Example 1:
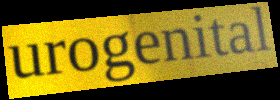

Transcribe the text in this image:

urogenital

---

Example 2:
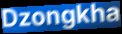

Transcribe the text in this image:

Dzongkha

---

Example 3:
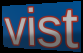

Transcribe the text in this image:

vist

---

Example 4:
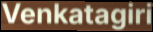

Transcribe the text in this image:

Venkatagiri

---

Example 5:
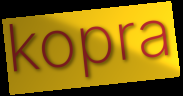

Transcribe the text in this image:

kopra